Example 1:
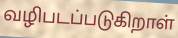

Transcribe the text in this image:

வழிபடப்படுகிறாள்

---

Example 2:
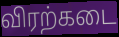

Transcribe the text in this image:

விரற்கடை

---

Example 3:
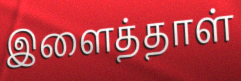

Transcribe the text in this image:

இளைத்தாள்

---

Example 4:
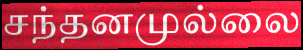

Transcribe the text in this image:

சந்தனமுல்லை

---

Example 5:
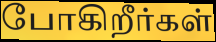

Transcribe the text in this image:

போகிறீர்கள்